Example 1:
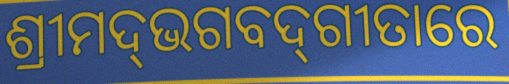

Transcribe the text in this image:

ଶ୍ରୀମଦ୍‌ଭଗବଦ୍‌ଗୀତାରେ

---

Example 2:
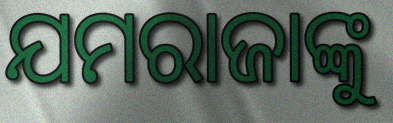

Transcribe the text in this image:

ଯମରାଜାଙ୍କୁ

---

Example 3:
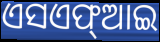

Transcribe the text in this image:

ଏସଏଫ୍ଆଇ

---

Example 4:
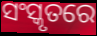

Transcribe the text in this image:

ସଂସ୍କୃତରେ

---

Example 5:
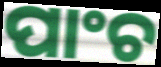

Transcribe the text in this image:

ପାଂଚ